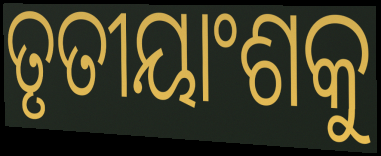
ତୃତୀୟାଂଶକୁ